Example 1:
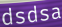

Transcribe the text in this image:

dsdsa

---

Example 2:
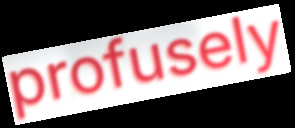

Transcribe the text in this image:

profusely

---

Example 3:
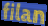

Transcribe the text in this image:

filan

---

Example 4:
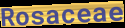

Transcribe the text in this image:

Rosaceae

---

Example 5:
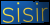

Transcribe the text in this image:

sisir